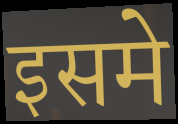
इसमे